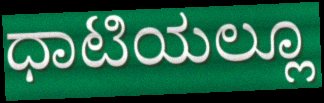
ಧಾಟಿಯಲ್ಲೂ